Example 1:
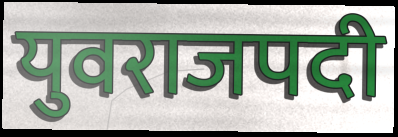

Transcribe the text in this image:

युवराजपदी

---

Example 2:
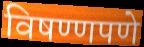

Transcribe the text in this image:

विषण्णपणे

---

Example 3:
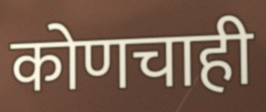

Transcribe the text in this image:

कोणचाही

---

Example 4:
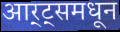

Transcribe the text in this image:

आर्ट्समधून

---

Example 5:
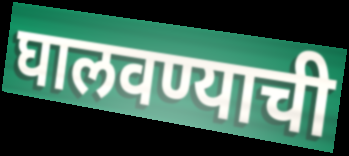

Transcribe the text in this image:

घालवण्याची